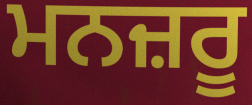
ਮਨਜ਼ਰੂ